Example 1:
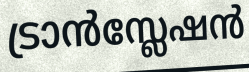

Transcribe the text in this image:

ട്രാൻസ്ലേഷൻ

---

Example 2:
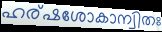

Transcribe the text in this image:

ഹര്ഷശോകാന്വിതഃ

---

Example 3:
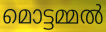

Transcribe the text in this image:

മൊട്ടമ്മൽ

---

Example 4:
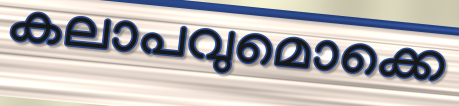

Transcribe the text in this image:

കലാപവുമൊക്കെ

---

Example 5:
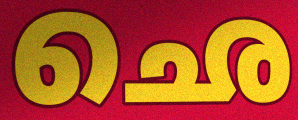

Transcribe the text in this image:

ഛെ